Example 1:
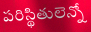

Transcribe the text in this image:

పరిస్థితులెన్నో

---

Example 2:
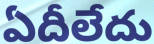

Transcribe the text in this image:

ఏదీలేదు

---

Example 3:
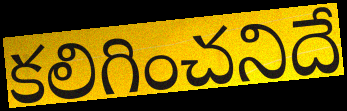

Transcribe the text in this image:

కలిగించనిదే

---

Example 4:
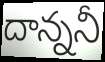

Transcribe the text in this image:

దాన్ననీ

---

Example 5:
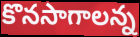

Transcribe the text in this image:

కొనసాగాలన్న